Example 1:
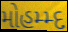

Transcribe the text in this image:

મોહમ્મ્દ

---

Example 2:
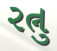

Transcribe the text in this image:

રત્નુ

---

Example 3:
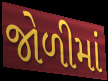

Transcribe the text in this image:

જોળીમાં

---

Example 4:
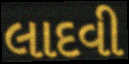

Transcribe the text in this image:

લાદવી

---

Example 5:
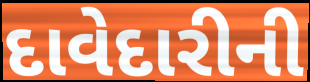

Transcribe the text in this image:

દાવેદારીની